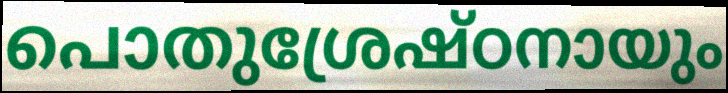
പൊതുശ്രേഷ്ഠനായും